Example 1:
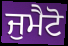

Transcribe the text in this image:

ਜੁਮੈਟੋ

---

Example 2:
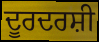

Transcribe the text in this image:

ਦੂਰਦਰਸ਼ੀ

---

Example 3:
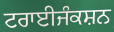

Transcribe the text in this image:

ਟਰਾਈਜੰਕਸ਼ਨ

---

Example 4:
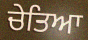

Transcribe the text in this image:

ਚੇਤਿਆ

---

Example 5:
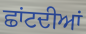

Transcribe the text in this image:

ਛਾਂਟਦੀਆਂ